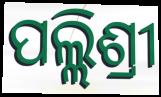
ପଲ୍ଲିଶ୍ରୀ